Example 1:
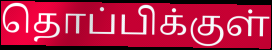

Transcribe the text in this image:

தொப்பிக்குள்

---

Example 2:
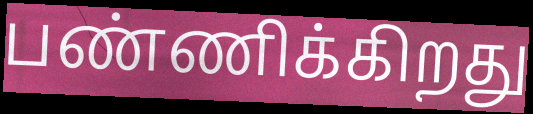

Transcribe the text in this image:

பண்ணிக்கிறது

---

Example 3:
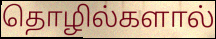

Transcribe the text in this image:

தொழில்களால்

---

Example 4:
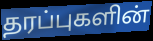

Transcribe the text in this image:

தரப்புகளின்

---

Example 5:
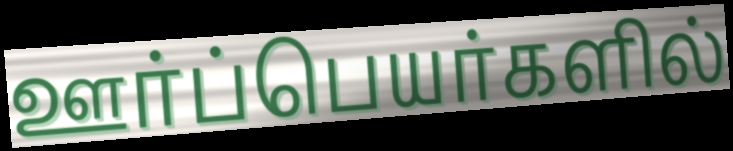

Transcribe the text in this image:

ஊர்ப்பெயர்களில்